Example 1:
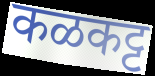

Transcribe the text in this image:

कळकट्ट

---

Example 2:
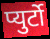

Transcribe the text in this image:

प्युर्टो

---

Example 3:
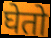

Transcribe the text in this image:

घेतो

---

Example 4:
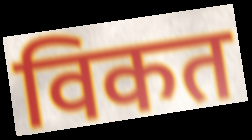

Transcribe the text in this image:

विकत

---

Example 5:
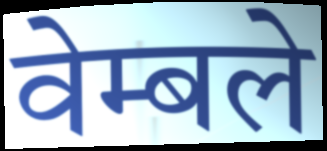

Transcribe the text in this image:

वेम्बले